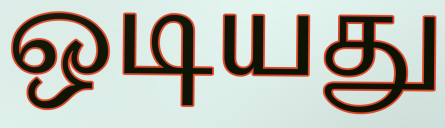
ஒடியது